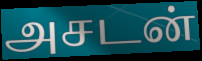
அசடன்